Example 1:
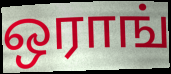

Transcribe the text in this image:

ஒராங்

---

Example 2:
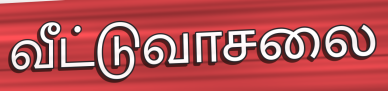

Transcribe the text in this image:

வீட்டுவாசலை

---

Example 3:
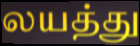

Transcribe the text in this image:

லயத்து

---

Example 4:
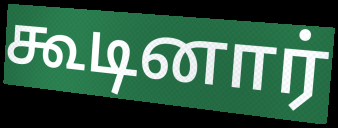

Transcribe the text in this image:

கூடினார்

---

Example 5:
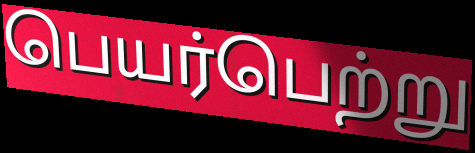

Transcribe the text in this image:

பெயர்பெற்று